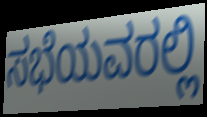
ಸಭೆಯವರಲ್ಲಿ